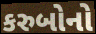
કરુબોનો